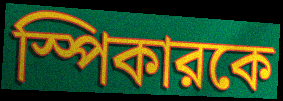
স্পিকারকে